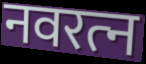
नवरत्‍न